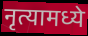
नृत्यामध्ये